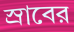
স্রাবের